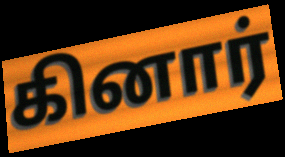
கினார்